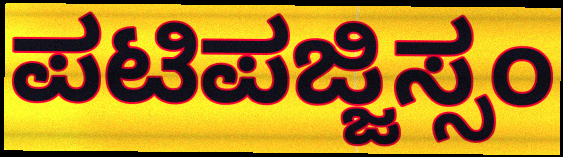
ಪಟಿಪಜ್ಜಿಸ್ಸಂ